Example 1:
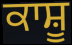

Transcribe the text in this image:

ਕਾਸ਼ੂ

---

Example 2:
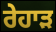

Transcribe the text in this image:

ਰੇਹਾੜ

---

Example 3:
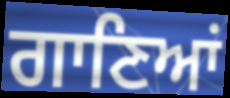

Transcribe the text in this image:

ਗਾਣਿਆਂ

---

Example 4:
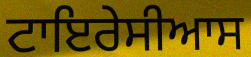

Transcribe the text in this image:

ਟਾਇਰੇਸੀਆਸ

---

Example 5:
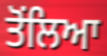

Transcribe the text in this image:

ਤੋਂਲਿਆ